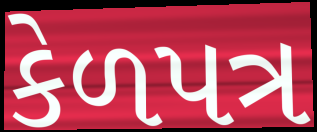
કેળપત્ર